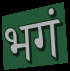
भगं